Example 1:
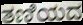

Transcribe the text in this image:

ತಣಿಯದ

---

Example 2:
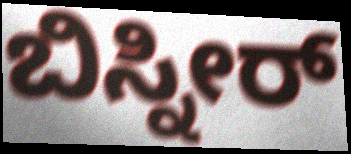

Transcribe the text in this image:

ಬಿಸ್ನೀರ್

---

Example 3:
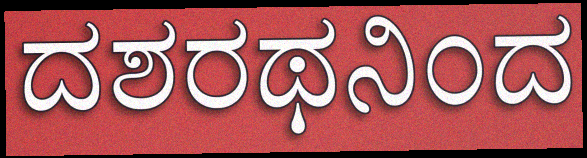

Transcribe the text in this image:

ದಶರಥನಿಂದ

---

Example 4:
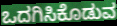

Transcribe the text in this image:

ಒದಗಿಸಿಕೊಡುವ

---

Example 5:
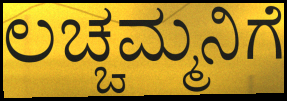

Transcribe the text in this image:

ಲಚ್ಚಮ್ಮನಿಗೆ